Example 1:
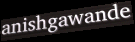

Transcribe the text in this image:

anishgawande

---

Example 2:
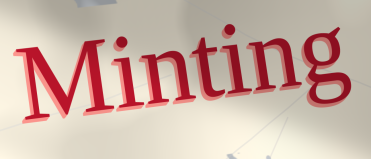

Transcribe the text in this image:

Minting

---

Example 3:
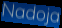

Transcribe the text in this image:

Nadoja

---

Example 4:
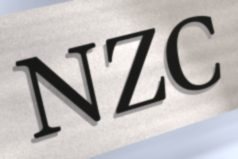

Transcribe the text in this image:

NZC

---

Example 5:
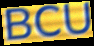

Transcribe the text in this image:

BCU